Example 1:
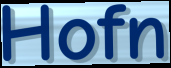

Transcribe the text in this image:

Hofn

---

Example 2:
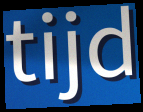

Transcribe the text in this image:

tijd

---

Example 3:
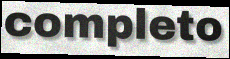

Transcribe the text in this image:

completo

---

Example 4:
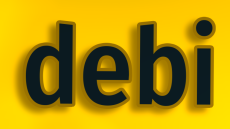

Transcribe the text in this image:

debi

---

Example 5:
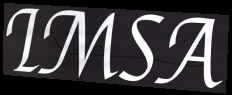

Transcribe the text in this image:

IMSA